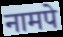
नामपे